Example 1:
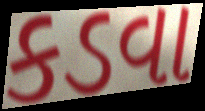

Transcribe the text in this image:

કડવા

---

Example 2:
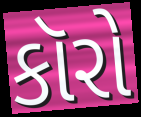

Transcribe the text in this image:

કૉરો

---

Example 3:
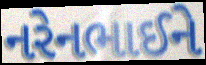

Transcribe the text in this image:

નરેનભાઈને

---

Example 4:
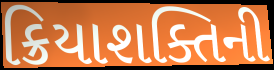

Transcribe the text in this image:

ક્રિયાશક્તિની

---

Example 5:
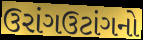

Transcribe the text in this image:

ઉરાંગઉટાંગનો